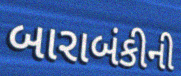
બારાબંકીની